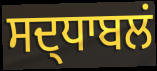
ਸਦ੍ਧਾਬਲਂ